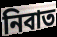
নিবাত